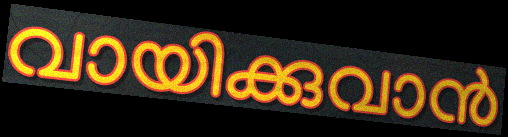
വായിക്കുവാൻ